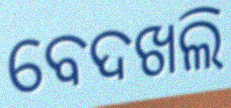
ବେଦଖଲି